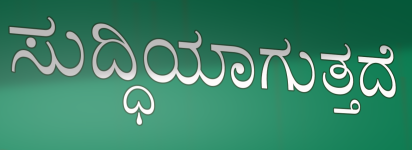
ಸುದ್ಧಿಯಾಗುತ್ತದೆ